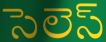
సెలెస్